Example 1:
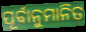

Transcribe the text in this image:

ପୂର୍ବାନୁମାନିତ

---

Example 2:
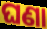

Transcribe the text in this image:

ଘଣା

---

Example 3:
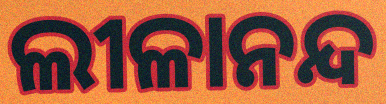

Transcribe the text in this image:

ଲୀଳାନନ୍ଦ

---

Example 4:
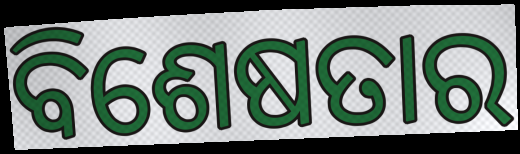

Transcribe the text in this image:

ବିଶେଷତାର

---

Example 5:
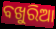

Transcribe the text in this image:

ବଖୁରିଆ